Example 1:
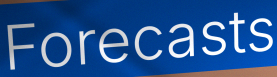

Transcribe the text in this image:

Forecasts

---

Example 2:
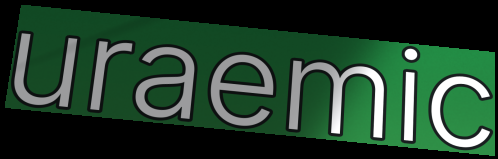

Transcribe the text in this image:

uraemic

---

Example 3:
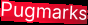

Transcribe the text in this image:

Pugmarks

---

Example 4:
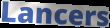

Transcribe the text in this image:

Lancers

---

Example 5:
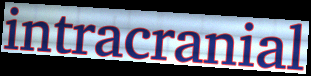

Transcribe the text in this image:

intracranial